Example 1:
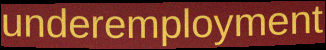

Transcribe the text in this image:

underemployment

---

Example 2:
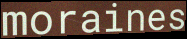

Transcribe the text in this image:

moraines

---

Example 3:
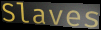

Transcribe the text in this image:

Slaves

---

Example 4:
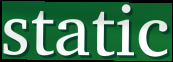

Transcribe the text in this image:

static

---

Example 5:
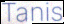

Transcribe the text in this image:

Tanis